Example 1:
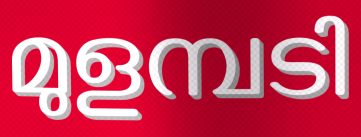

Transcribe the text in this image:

മുളമ്പടി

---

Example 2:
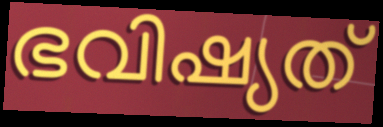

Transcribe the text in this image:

ഭവിഷ്യത്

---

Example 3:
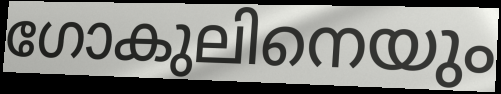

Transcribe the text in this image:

ഗോകുലിനെയും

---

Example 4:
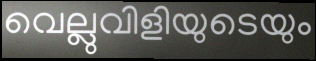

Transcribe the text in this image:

വെല്ലുവിളിയുടെയും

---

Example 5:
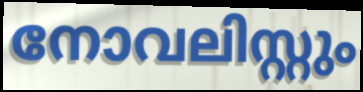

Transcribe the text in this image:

നോവലിസ്റ്റും